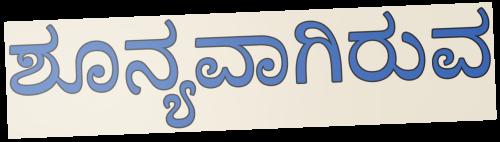
ಶೂನ್ಯವಾಗಿರುವ